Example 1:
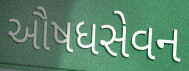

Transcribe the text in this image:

ઔષધસેવન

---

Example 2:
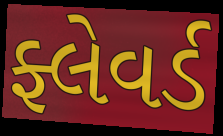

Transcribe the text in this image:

ફ્લેવર્ડ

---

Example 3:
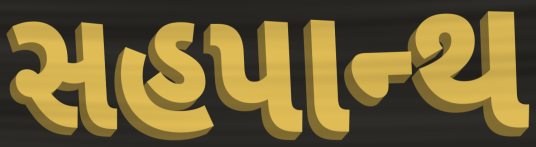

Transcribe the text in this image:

સહપાન્થ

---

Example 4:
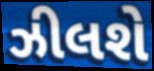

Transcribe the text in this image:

ઝીલશે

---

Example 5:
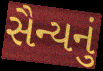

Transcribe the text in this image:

સૈન્યનું